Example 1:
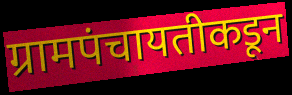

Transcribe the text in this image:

ग्रामपंचायतीकडून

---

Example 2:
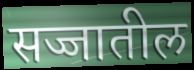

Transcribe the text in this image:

सज्जातील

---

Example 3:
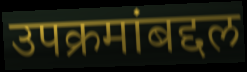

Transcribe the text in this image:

उपक्रमांबद्दल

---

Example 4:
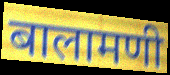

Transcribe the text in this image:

बालामणी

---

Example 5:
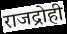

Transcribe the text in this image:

राजद्रोही